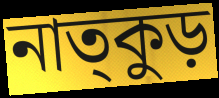
নাত্কুড়